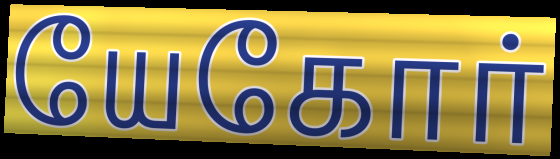
யேகோர்